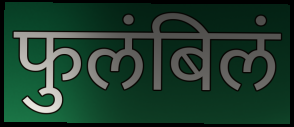
फुलंबिलं